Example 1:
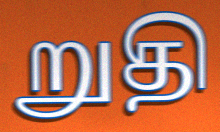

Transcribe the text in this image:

றுதி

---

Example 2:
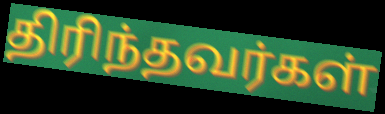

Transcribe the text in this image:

திரிந்தவர்கள்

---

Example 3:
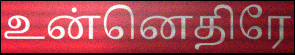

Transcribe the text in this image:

உன்னெதிரே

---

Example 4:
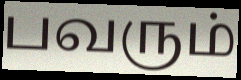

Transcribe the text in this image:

பவரும்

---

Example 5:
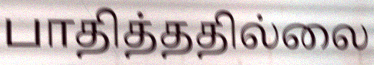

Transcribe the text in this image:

பாதித்ததில்லை